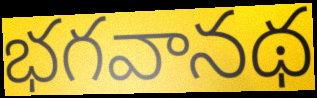
భగవానథ